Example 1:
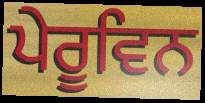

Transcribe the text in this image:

ਪੇਰੂਵਿਨ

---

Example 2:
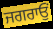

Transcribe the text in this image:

ਜਗਰਾਓੁਂ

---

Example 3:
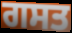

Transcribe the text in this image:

ਗਸਤ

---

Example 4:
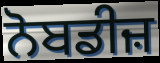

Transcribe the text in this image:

ਨੋਬਡੀਜ਼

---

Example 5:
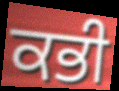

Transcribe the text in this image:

ਕਭੀ